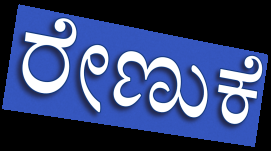
ರೇಣುಕೆ